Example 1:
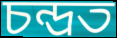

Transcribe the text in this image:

চন্দ্ৰত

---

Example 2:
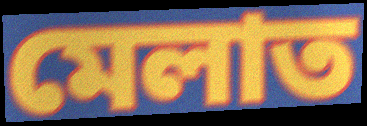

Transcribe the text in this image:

মেলাত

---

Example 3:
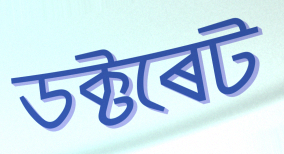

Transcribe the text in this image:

ডক্টৰেট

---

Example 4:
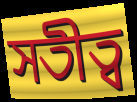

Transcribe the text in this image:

সতীত্ব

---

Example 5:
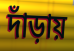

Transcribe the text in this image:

দাঁড়ায়